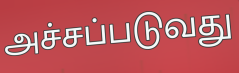
அச்சப்படுவது